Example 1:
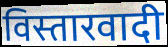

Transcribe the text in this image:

विस्तारवादी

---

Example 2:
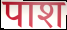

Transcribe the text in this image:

पाश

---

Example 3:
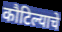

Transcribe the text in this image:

कौटिल्याचे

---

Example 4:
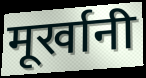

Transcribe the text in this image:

मूर्खानी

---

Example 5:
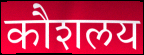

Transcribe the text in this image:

कौशलय